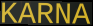
KARNA